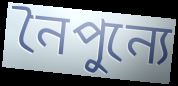
নৈপুন্যে